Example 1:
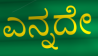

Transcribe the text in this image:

ಎನ್ನದೇ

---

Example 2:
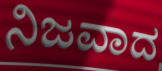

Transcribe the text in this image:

ನಿಜವಾದ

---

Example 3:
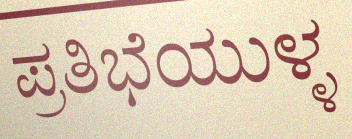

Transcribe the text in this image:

ಪ್ರತಿಭೆಯುಳ್ಳ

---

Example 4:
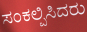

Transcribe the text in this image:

ಸಂಕಲ್ಪಿಸಿದರು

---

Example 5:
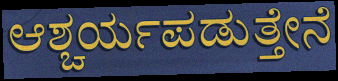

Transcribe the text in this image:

ಆಶ್ಚರ್ಯಪಡುತ್ತೇನೆ